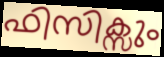
ഫിസിക്സും